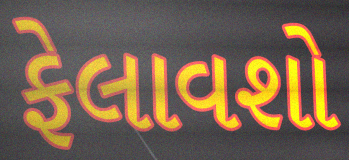
ફેલાવશો